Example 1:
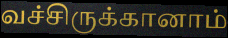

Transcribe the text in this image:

வச்சிருக்கானாம்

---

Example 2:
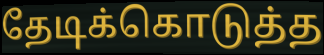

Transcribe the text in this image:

தேடிக்கொடுத்த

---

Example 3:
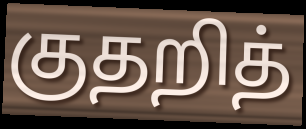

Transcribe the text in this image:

குதறித்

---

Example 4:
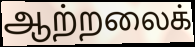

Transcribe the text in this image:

ஆற்றலைக்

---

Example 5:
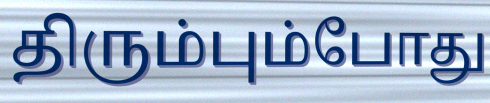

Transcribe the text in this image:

திரும்பும்போது